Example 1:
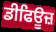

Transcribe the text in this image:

ਡੀਫਿਊਜ਼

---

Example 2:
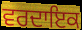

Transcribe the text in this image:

ਵਰਦਾਇਕ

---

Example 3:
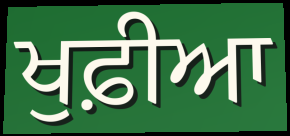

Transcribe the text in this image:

ਖੁਫ਼ੀਆ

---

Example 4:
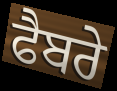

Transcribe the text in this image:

ਫੈਬਰੇ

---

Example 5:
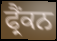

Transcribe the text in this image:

ਫ੍ਰੈਂਕਨ